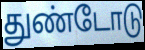
துண்டோடு